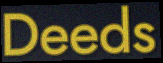
Deeds